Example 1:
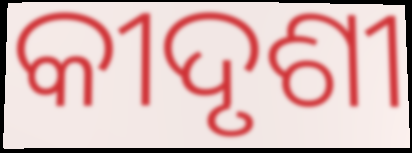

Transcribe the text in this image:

କୀଦୃଶୀ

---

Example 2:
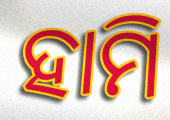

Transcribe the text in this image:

ହାମି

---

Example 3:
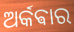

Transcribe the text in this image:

ଅର୍କଵାର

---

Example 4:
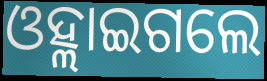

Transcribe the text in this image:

ଓହ୍ଲାଇଗଲେ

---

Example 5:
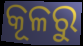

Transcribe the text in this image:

କୂଳରୁ